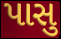
પાસુ